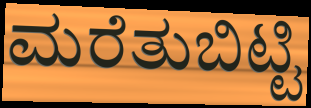
ಮರೆತುಬಿಟ್ಟಿ